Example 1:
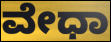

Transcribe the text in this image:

ವೇಧಾ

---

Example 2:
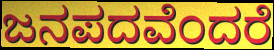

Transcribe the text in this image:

ಜನಪದವೆಂದರೆ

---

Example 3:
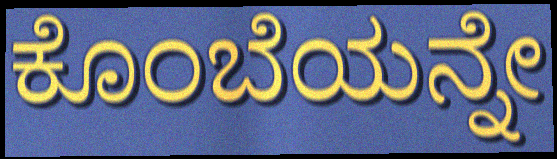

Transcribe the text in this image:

ಕೊಂಬೆಯನ್ನೇ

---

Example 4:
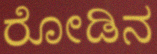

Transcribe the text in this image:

ರೋಡಿನ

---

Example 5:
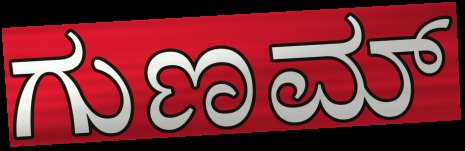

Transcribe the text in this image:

ಗುಣಮ್